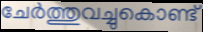
ചേർത്തുവച്ചുകൊണ്ട്